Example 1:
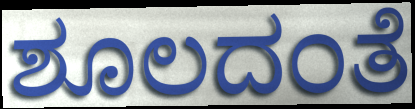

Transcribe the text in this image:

ಶೂಲದಂತೆ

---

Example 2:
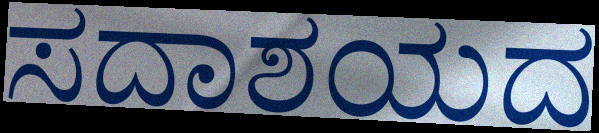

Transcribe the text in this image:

ಸದಾಶಯದ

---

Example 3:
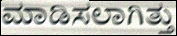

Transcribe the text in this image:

ಮಾಡಿಸಲಾಗಿತ್ತು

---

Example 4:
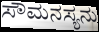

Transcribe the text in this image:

ಸೌಮನಸ್ಯನು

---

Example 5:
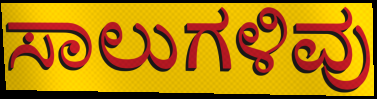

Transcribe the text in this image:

ಸಾಲುಗಳಿವು